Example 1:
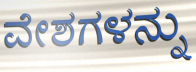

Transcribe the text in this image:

ವೇಶಗಳನ್ನು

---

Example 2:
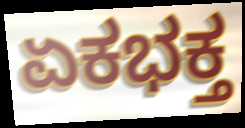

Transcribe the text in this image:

ಏಕಭಕ್ತ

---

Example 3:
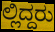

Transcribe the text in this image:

ಲ್ಲಿದ್ದರು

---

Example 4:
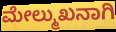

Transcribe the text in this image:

ಮೇಲ್ಮುಖನಾಗಿ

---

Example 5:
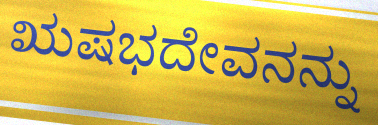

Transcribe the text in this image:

ಋಷಭದೇವನನ್ನು